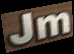
Jm